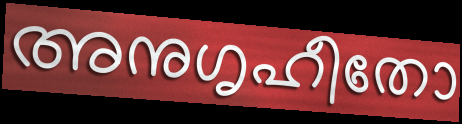
അനുഗൃഹീതോ